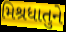
મિશ્રધાતુને